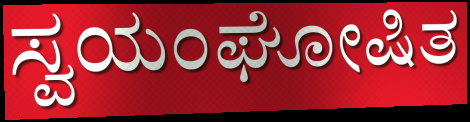
ಸ್ವಯಂಘೋಷಿತ